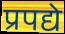
प्रपद्ये